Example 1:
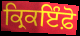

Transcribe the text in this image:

ਕ੍ਰਿਕਇੰਫ਼ੋ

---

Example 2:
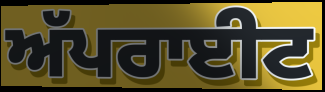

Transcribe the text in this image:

ਅੱਪਰਾਈਟ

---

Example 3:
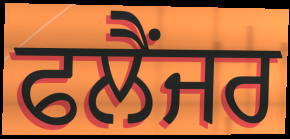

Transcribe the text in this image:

ਫਲੈਂਜਰ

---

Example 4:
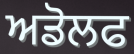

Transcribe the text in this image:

ਅਡੋਲਫ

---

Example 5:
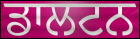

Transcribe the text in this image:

ਡਾਲਟਨ